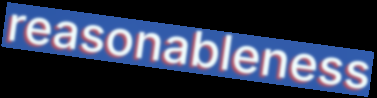
reasonableness